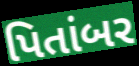
પિતાંબર